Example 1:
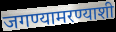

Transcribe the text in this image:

जगण्यामरण्याशी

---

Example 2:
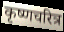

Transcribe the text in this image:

कृष्णचरित्र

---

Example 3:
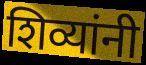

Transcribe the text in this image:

शिव्यांनी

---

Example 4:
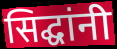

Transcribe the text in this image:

सिद्घांनी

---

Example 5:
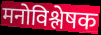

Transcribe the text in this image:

मनोविश्लेषक